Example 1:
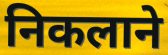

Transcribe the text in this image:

निकलाने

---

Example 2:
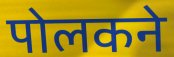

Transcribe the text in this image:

पोलकने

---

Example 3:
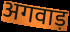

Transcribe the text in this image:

अगवाड़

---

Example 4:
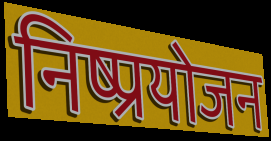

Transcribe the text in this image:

निष्प्रयोजन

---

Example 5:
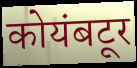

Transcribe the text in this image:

कोयंबटूर